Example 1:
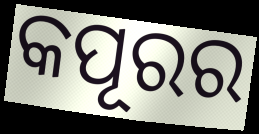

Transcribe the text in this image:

କପୂରର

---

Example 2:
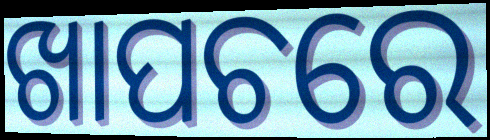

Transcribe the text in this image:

ଖାପଚରେ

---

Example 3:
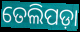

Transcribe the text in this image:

ତେଲିପଡ଼ା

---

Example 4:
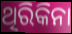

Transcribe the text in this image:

ଥିରିକିନା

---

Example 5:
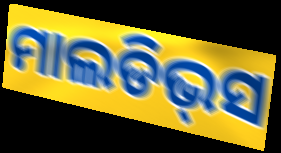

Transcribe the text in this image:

ମାଲଡିଭ୍‌ସ